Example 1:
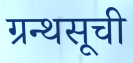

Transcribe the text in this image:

ग्रन्थसूची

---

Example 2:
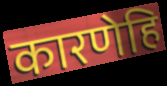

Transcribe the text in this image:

कारणेहि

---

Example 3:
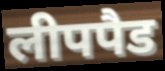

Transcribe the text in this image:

लीपपैड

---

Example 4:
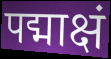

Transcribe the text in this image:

पद्माक्षं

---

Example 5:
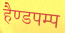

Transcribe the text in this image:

हैण्डपम्प